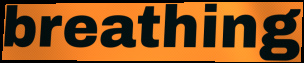
breathing